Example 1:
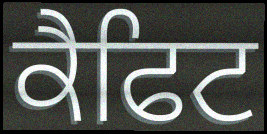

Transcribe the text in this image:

ਕੈਫਿਟ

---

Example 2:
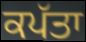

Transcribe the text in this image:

ਕਪੱਤਾ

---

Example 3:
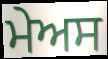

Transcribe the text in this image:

ਮੇਅਸ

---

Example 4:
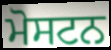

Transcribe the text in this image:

ਮੋਸਟਨ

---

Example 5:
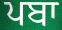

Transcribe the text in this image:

ਪਬਾ